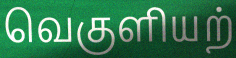
வெகுளியற்